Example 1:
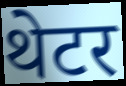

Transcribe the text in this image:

थेटर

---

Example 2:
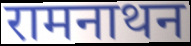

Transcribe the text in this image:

रामनाथन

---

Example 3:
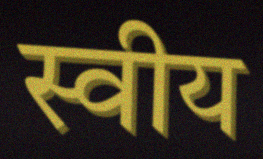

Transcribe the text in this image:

स्वीय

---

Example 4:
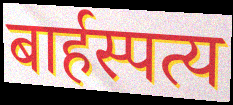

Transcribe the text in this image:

बार्हस्पत्य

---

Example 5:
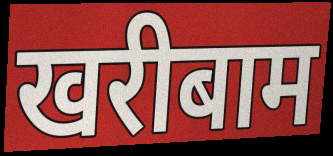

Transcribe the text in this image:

खरीबाम